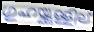
ഗുഹയ്ക്കുള്ളില്